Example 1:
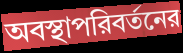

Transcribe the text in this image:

অবস্থাপরিবর্তনের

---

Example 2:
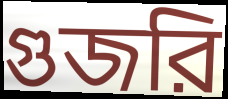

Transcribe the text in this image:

গুজরি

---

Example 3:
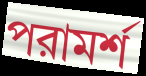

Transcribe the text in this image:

পরামর্শ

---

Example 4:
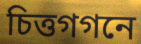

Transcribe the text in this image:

চিত্তগগনে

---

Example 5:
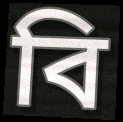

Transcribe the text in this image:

বি